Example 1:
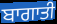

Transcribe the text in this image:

ਬਾਗਾਤੀ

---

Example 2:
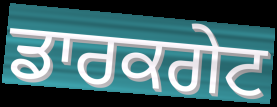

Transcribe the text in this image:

ਡਾਰਕਗੇਟ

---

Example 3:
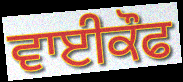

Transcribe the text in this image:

ਵਾਈਕੌਫ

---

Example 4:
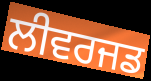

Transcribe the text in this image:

ਲੀਵਰਜਡ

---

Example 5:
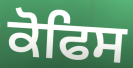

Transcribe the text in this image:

ਕੋਫਿਸ